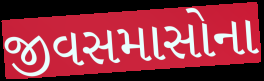
જીવસમાસોના